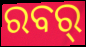
ରବର୍